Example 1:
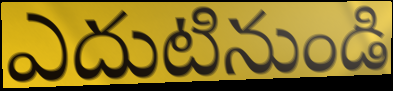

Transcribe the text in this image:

ఎదుటినుండి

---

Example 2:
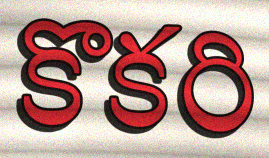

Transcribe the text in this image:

కొకరి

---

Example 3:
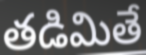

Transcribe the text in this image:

తడిమితే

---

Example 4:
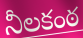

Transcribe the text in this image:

నీలకంఠ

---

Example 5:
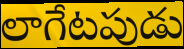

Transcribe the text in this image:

లాగేటపుడు